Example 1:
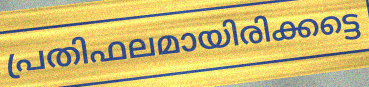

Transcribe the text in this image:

പ്രതിഫലമായിരിക്കട്ടെ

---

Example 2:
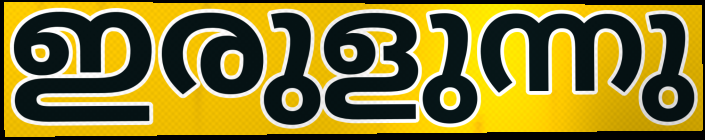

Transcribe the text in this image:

ഇരുളുന്നു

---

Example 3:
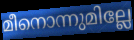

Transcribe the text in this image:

മീനൊന്നുമില്ലേ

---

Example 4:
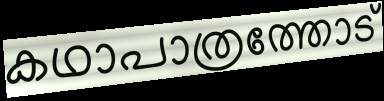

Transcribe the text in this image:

കഥാപാത്രത്തോട്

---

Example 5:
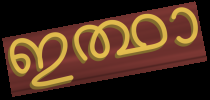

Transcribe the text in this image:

ഇത്ഥാ